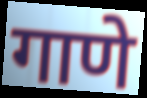
गाणे